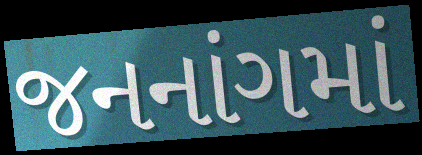
જનનાંગમાં